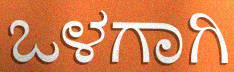
ಒಳಗಾಗಿ